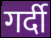
गर्दी